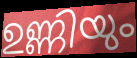
ഉണ്ണിയും